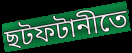
ছটফটানীতে